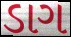
ડાગ